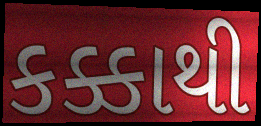
કક્કાથી